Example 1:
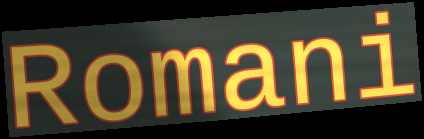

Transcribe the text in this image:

Romani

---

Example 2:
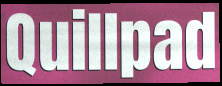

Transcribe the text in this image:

Quillpad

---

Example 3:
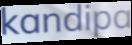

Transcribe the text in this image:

kandipa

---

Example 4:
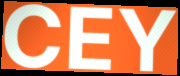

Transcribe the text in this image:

CEY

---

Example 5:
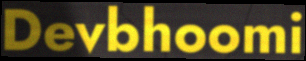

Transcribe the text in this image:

Devbhoomi